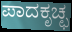
ಪಾದಕೃಚ್ಛ